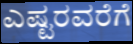
ಎಷ್ಟರವರೆಗೆ